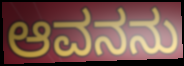
ಆವನನು